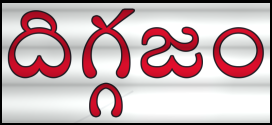
దిగ్గజం